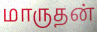
மாருதன்